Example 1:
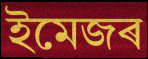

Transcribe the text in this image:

ইমেজৰ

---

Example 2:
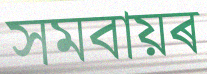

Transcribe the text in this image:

সমবায়ৰ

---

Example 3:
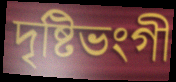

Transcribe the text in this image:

দৃষ্টিভংগী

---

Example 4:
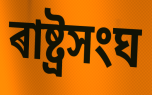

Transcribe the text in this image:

ৰাষ্ট্ৰসংঘ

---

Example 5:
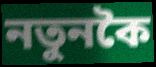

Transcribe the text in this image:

নতুনকৈ